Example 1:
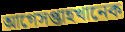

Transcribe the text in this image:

আগেসপ্তাহখানেক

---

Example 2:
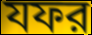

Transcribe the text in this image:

যফর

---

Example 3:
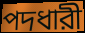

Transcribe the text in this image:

পদধারী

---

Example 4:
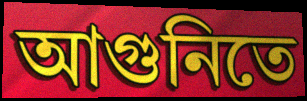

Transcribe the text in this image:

আগুনিতে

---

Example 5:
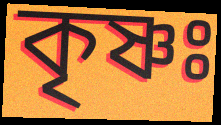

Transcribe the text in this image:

কৃষ্ণঃ